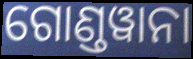
ଗୋଣ୍ଡୱାନା